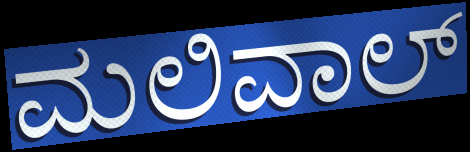
ಮಲಿವಾಲ್